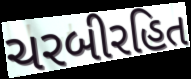
ચરબીરહિત